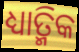
ଧ୍ୟାତ୍ମିକ